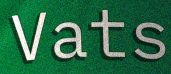
Vats